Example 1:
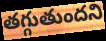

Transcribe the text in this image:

తగ్గుతుందని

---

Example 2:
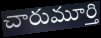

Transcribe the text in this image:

చారుమూర్తి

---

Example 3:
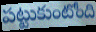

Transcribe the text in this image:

పట్టుకుంటోంది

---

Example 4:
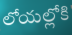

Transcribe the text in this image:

లోయల్లోకి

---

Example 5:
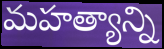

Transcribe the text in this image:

మహత్యాన్ని